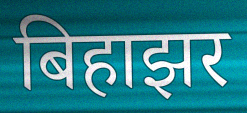
बिहाझर